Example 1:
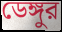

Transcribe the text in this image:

ডেঙ্গুর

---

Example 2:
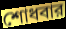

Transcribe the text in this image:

শোধবার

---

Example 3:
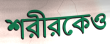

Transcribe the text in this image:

শরীরকেও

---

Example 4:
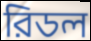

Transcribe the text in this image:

রিডল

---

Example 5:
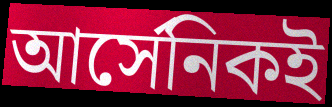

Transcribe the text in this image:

আর্সেনিকই